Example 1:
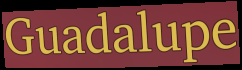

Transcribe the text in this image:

Guadalupe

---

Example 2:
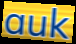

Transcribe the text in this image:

auk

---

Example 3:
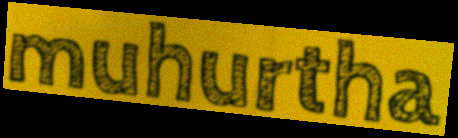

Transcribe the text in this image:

muhurtha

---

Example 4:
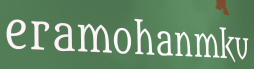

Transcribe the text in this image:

eramohanmku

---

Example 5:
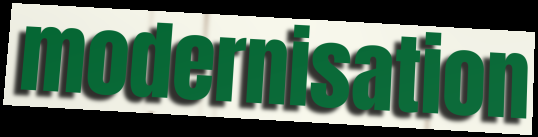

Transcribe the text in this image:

modernisation